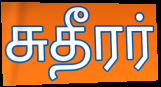
சுதீரர்